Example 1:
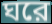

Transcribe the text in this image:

ঘরে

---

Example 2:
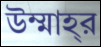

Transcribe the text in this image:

উম্মাহ্‌র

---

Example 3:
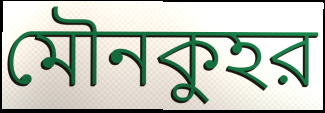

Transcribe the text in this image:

মৌনকুহর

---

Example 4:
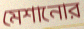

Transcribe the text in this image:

মেশানোর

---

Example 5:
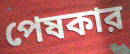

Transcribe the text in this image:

পেষকার